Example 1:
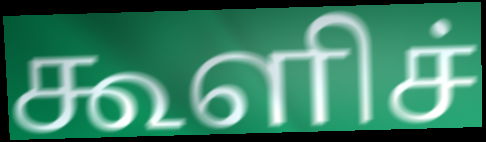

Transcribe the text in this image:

கூளிச்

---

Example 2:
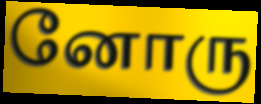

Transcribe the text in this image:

னோரு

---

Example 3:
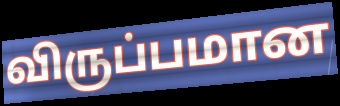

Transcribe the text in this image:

விருப்பமான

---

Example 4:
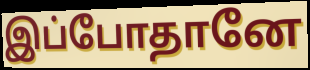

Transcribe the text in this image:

இப்போதானே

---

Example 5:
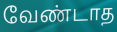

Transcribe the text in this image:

வேண்டாத